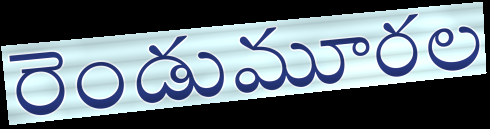
రెండుమూరల